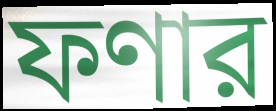
ফণার